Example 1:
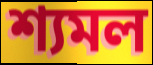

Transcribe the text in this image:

শ্যমল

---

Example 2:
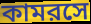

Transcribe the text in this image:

কামরসে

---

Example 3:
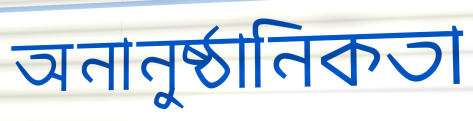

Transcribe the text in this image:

অনানুষ্ঠানিকতা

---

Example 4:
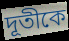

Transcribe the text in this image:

দূতীকে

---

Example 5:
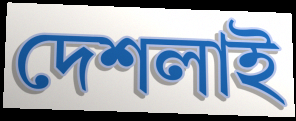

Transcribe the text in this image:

দেশলাই